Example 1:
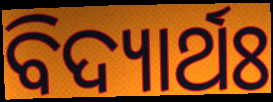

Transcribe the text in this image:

ବିଦ୍ୟାର୍ଥଃ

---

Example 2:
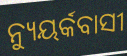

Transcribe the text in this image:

ନ୍ୟୁୟର୍କବାସୀ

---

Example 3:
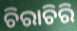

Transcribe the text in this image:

ଚିରାଚିରି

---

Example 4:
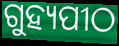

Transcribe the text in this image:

ଗୁହ୍ୟପୀଠ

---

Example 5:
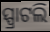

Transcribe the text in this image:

ସ୍ପ୍ରାଟଲି